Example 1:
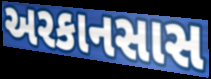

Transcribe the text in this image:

અરકાનસાસ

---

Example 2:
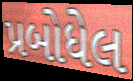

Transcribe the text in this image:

પ્રબોધેલ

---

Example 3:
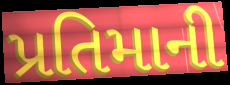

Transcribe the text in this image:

પ્રતિમાની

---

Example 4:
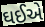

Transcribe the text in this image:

ઘઈએ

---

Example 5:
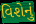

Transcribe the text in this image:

વિશેનું